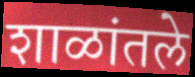
शाळांतले